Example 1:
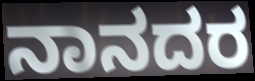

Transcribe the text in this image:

ನಾನದರ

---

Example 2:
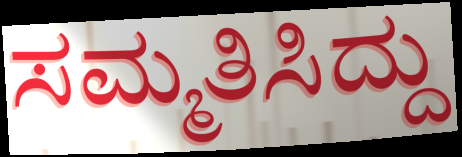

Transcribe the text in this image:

ಸಮ್ಮತಿಸಿದ್ದು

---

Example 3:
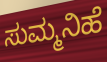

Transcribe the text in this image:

ಸುಮ್ಮನಿಹೆ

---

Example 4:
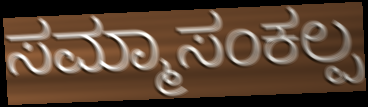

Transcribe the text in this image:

ಸಮ್ಮಾಸಂಕಲ್ಪ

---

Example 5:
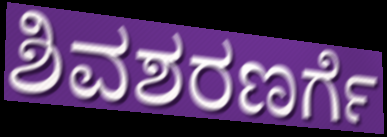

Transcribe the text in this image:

ಶಿವಶರಣರ್ಗೆ